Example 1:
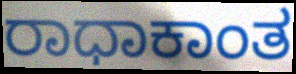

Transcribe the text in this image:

ರಾಧಾಕಾಂತ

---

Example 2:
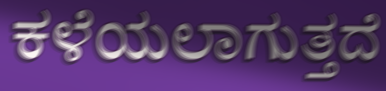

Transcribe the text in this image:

ಕಳೆಯಲಾಗುತ್ತದೆ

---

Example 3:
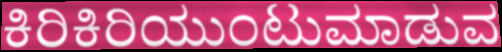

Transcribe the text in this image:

ಕಿರಿಕಿರಿಯುಂಟುಮಾಡುವ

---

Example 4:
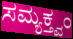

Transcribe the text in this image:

ಸಮ್ಯಕ್ತ್ವಂ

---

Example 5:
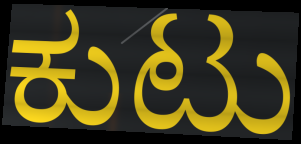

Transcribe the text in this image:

ಕುಟು